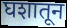
घशातून